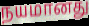
நயமானது